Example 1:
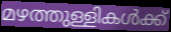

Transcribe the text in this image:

മഴത്തുള്ളികൾക്ക്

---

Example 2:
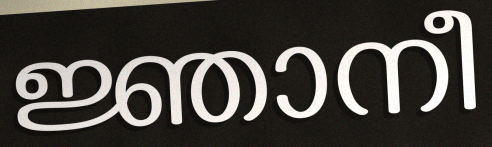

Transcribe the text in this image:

ജ്ഞാനീ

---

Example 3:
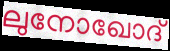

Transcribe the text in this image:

ലുനോഖോദ്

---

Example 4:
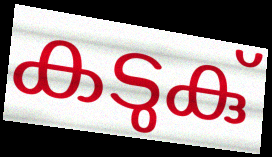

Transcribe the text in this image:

കടുകു്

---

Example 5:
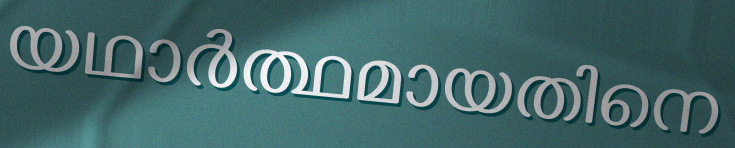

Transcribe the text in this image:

യഥാർത്ഥമായതിനെ